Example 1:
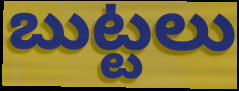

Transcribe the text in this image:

బుట్టలు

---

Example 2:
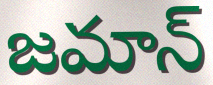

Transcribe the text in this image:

జమాన్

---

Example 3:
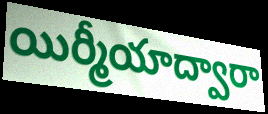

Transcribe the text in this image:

యిర్మీయాద్వారా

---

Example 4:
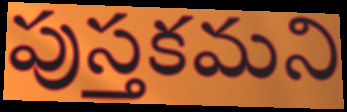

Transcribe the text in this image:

పుస్తకమని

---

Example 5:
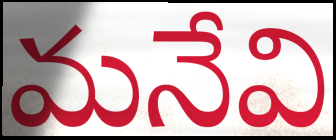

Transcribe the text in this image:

మనేవి